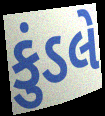
કુંડલે